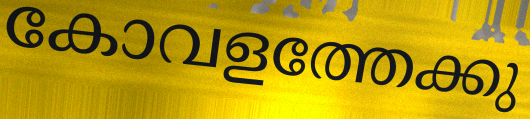
കോവളത്തേക്കു